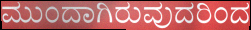
ಮುಂದಾಗಿರುವುದರಿಂದ